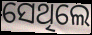
ସେଥିଲେ